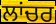
ਲਾਂਚਰ